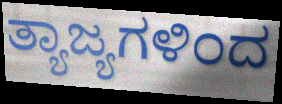
ತ್ಯಾಜ್ಯಗಳಿಂದ